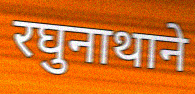
रघुनाथाने